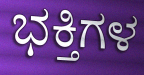
ಭಕ್ತಿಗಳ